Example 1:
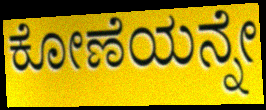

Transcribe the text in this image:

ಕೋಣೆಯನ್ನೇ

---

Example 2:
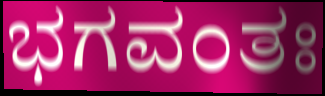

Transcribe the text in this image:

ಭಗವಂತಃ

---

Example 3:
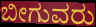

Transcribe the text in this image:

ಬೀಗುವರು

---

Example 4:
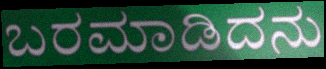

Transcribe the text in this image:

ಬರಮಾಡಿದನು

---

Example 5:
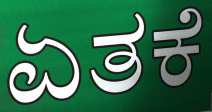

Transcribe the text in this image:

ಏತಕೆ